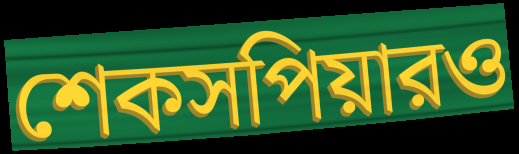
শেকসপিয়ারও